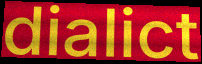
dialict